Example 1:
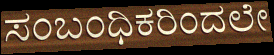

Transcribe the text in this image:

ಸಂಬಂಧಿಕರಿಂದಲೇ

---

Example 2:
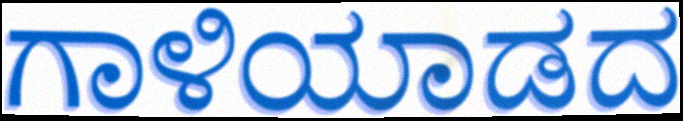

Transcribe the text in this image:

ಗಾಳಿಯಾಡದ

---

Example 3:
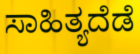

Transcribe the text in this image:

ಸಾಹಿತ್ಯದೆಡೆ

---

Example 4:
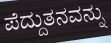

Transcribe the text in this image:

ಪೆದ್ದುತನವನ್ನು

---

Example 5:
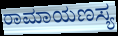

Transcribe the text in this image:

ರಾಮಾಯಣಸ್ಯ